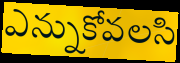
ఎన్నుకోవలసి